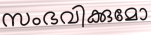
സംഭവിക്കുമോ